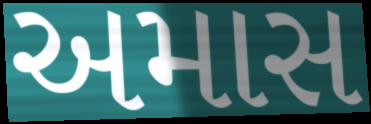
અમાસ